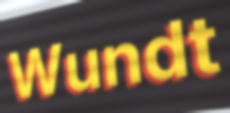
Wundt